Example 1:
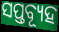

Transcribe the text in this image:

ସପ୍ତବ୍ୟୂହ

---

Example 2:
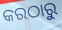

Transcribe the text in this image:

କରଠାରୁ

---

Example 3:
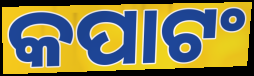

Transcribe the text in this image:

କପାଟଂ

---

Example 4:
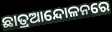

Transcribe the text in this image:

ଛାତ୍ରଆନ୍ଦୋଳନରେ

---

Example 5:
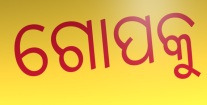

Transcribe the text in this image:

ଗୋପକୁ